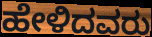
ಹೇಳಿದವರು